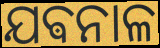
ଯଵନାଳ